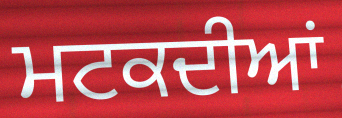
ਮਟਕਦੀਆਂ